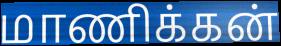
மாணிக்கன்